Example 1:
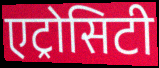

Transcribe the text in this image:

एट्रोसिटी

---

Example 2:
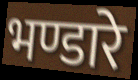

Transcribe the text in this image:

भण्डारे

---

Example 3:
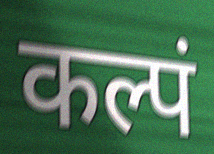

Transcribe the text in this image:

कल्पं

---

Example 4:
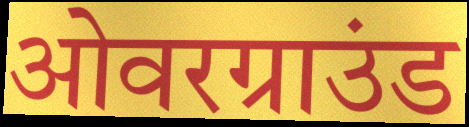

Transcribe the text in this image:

ओवरग्राउंड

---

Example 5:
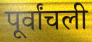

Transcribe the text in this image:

पूर्वांचली